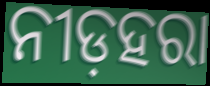
ନୀଡ଼ହରା